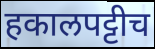
हकालपट्टीच